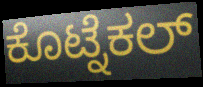
ಕೊಟ್ನೆಕಲ್